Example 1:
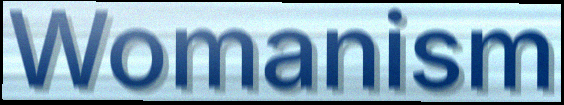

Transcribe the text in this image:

Womanism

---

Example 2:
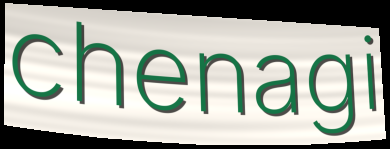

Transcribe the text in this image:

chenagi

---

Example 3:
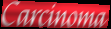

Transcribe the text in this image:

Carcinoma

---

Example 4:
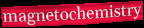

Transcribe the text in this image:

magnetochemistry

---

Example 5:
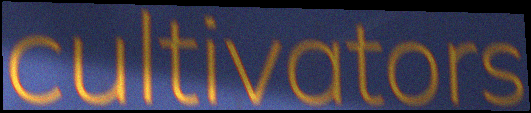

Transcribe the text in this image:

cultivators